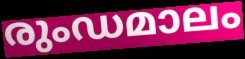
രുംഡമാലം